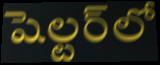
షెల్టర్‌లో